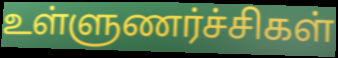
உள்ளுணர்ச்சிகள்